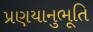
પ્રણયાનુભૂતિ